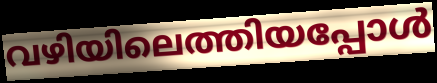
വഴിയിലെത്തിയപ്പോൾ